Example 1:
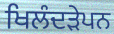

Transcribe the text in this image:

ਖਿਲੰਦੜੇਪਨ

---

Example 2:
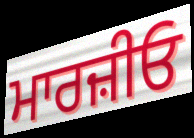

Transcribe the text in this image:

ਮਾਰਜ਼ੀਓ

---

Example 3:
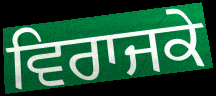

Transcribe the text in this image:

ਵਿਰਾਜਕੇ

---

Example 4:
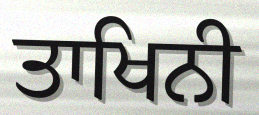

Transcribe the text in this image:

ਤਾਖਿਨੀ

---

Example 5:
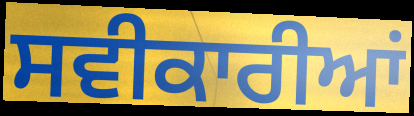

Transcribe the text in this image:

ਸਵੀਕਾਰੀਆਂ